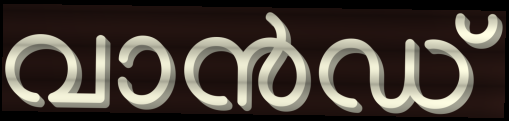
വാൻഡ്